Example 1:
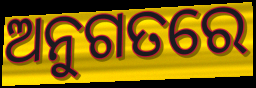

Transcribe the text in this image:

ଅନୁଗତରେ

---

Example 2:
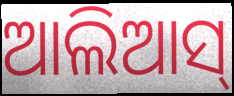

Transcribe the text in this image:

ଆଲିଆସ୍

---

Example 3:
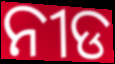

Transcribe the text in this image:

ନୀଡ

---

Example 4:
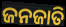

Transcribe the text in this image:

ଜନଜାତି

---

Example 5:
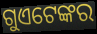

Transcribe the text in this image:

ଗୁଏଟେଙ୍କର